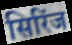
सिरिंज